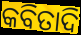
କବିତାଦି